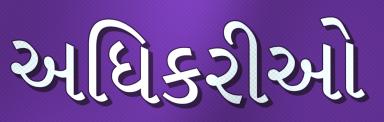
અધિકરીઓ